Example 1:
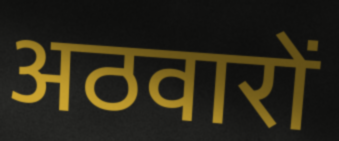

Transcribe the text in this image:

अठवारों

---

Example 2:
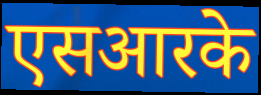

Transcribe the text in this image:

एसआरके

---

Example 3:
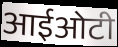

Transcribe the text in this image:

आईओटी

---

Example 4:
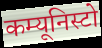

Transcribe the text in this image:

कम्यूनिस्टो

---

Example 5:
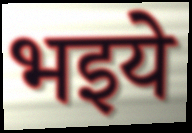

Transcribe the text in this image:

भइये